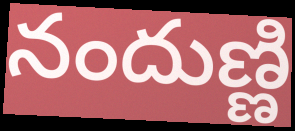
నందుణ్ణి